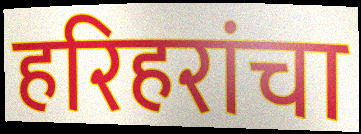
हरिहरांचा